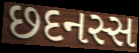
છદનસ્સ